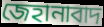
জেহানাবাদ